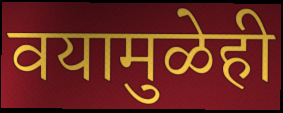
वयामुळेही